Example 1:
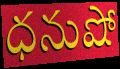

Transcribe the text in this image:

ధనుషో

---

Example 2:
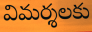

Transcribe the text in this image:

విమర్శలకు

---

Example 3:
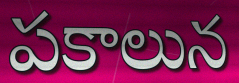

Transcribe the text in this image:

పకాలున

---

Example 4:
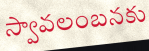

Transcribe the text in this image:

స్వావలంబనకు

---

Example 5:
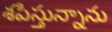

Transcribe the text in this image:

శపిస్తున్నాను